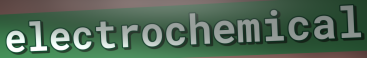
electrochemical